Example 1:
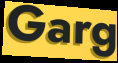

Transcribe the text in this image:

Garg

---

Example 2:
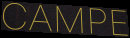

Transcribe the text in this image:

CAMPE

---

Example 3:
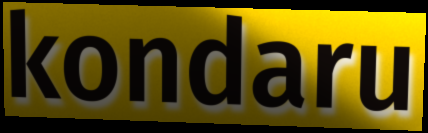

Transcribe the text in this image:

kondaru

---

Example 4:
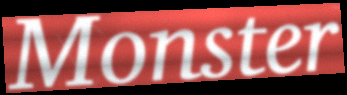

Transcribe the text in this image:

Monster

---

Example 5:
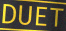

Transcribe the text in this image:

DUET